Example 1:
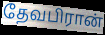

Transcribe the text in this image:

தேவபிரான்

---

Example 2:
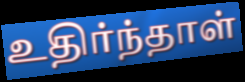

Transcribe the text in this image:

உதிர்ந்தாள்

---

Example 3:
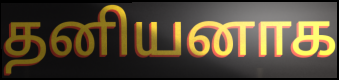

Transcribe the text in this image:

தனியனாக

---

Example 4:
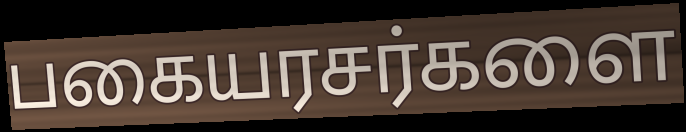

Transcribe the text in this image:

பகையரசர்களை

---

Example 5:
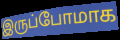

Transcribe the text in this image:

இருப்போமாக